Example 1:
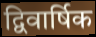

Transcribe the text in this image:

द्विवार्षिक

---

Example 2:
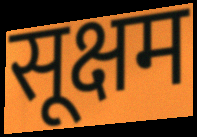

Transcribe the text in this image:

सूक्षम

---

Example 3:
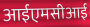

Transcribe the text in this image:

आईएमसीआई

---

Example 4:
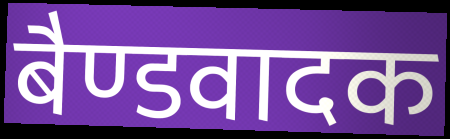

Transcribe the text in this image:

बैण्डवादक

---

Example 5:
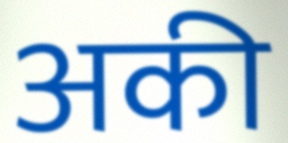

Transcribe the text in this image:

अकी